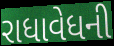
રાધાવેધની